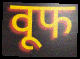
वूफ